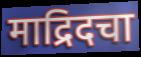
माद्रिदचा